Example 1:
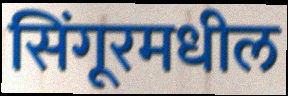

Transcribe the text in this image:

सिंगूरमधील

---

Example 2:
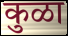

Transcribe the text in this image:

कुळा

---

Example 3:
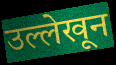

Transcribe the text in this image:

उल्लेखून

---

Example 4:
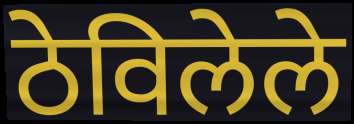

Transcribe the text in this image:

ठेविलेले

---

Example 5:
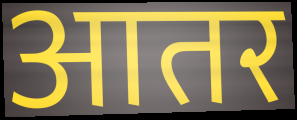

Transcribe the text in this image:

आतर